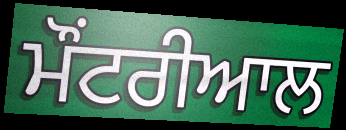
ਮੌਂਟਰੀਆਲ